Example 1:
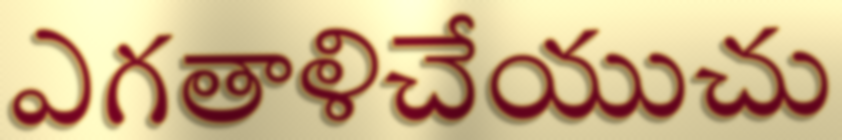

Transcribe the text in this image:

ఎగతాళిచేయుచు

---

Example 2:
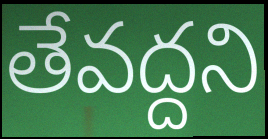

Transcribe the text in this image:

తేవద్దని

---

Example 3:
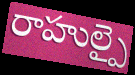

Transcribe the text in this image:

రాహుల్పై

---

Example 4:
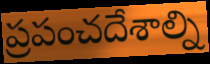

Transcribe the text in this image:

ప్రపంచదేశాల్ని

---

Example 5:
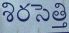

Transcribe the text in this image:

శిరసెత్తి